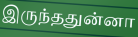
இருந்ததுன்னா